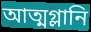
আত্মগ্লানি